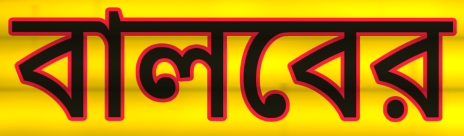
বালবের